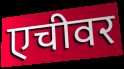
एचीवर